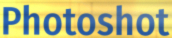
Photoshot